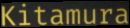
Kitamura